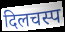
दिलचस्प